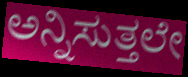
ಅನ್ನಿಸುತ್ತಲೇ